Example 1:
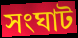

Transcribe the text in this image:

সংঘাট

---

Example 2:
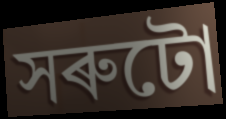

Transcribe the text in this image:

সৰুটো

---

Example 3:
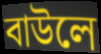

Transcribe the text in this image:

বাউলে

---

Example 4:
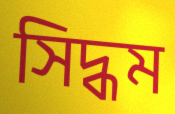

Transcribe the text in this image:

সিদ্ধম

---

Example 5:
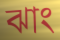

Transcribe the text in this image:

ঝাং